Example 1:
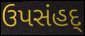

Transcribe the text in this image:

ઉપસંહદ્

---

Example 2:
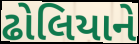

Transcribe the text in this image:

ઢોલિયાને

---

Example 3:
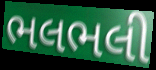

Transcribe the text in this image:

ભલભલી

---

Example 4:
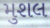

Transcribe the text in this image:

મુશલ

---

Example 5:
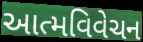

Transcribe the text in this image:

આત્મવિવેચન